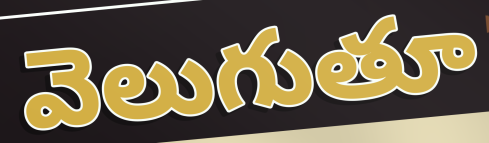
వెలుగుతూ